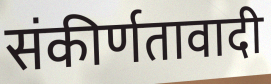
संकीर्णतावादी